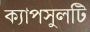
ক্যাপসুলটি